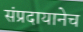
संप्रदायानेच